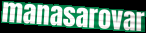
manasarovar